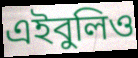
এইবুলিও